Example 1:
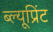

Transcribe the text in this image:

ब्ल्यूप्रिंट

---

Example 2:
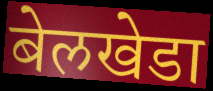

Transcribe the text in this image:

बेलखेडा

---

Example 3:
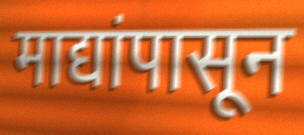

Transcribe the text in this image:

माद्यांपासून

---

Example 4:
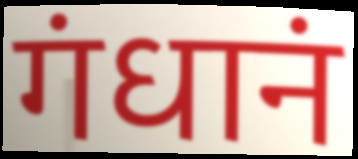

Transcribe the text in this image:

गंधानं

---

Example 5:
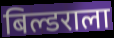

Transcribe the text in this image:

बिल्डराला